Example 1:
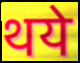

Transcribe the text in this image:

थये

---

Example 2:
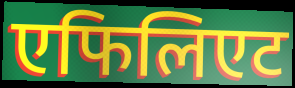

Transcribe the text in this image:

एफिलिएट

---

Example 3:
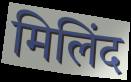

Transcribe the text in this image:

मिलिंद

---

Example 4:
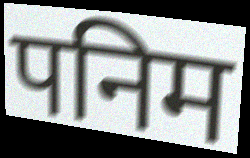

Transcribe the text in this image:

पनिम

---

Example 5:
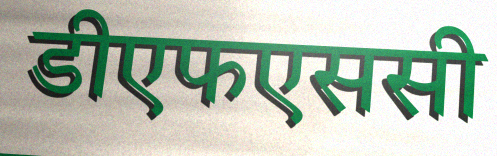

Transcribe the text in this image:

डीएफएससी